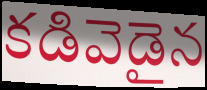
కడివెడైన